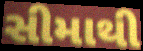
સીમાથી